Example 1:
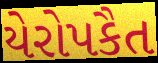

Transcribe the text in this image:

યેરોપકૈત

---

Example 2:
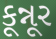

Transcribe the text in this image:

કૂન્નૂર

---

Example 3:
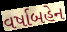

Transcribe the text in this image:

વર્ષાબહેન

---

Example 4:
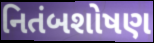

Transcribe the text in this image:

નિતંબશોષણ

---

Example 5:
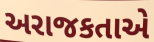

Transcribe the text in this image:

અરાજકતાએ